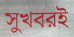
সুখবরই